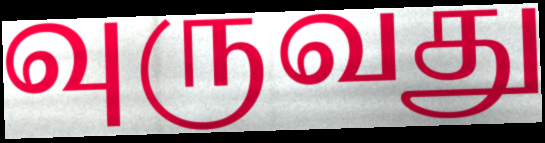
வுருவது